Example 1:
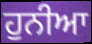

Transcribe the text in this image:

ਹੁਨੀਆ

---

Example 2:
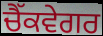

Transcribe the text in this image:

ਚੈੱਕਵੇਗਰ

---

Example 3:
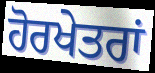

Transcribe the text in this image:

ਹੋਰਖੇਤਰਾਂ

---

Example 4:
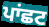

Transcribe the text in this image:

ਪਾਂਛਟ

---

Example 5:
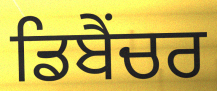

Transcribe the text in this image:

ਡਿਬੈਂਚਰ